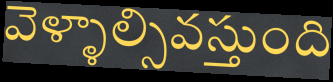
వెళ్ళాల్సివస్తుంది